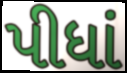
પીધાં